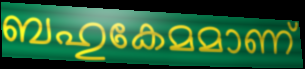
ബഹുകേമമാണ്